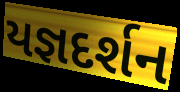
યજ્ઞદર્શન